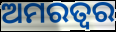
ଅମରତ୍ୱର